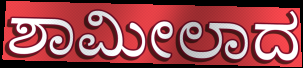
ಶಾಮೀಲಾದ